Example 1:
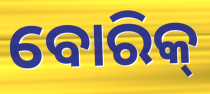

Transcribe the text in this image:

ବୋରିକ୍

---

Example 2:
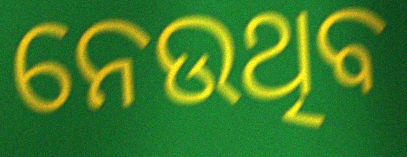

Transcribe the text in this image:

ନେଉଥିବ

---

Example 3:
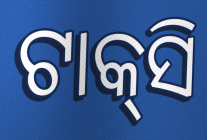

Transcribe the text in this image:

ଟାକ୍‍ସି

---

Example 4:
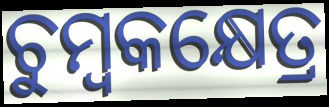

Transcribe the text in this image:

ଚୁମ୍ବକକ୍ଷେତ୍ର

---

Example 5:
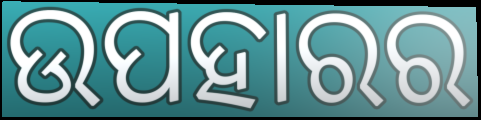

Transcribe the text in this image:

ଉପହାରର